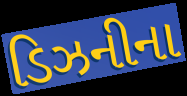
ડિઝનીના